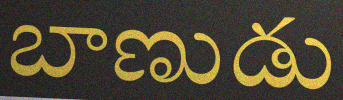
బాణుడు